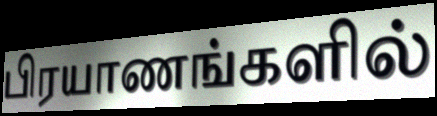
பிரயாணங்களில்